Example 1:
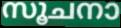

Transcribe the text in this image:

സൂചനാ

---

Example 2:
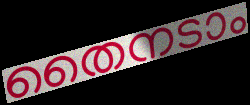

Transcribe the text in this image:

തൈനടാം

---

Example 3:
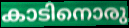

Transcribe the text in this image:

കാടിനൊരു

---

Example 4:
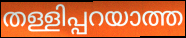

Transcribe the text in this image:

തള്ളിപ്പറയാത്ത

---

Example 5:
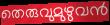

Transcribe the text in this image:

തെരുവുമുഴുവൻ